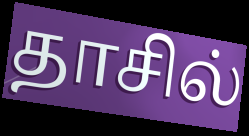
தாசில்